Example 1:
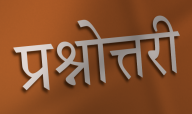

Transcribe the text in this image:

प्रश्नोत्तरी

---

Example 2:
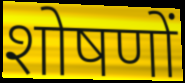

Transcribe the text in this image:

शोषणों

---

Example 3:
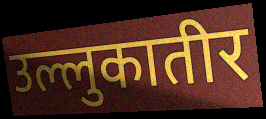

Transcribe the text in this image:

उल्लुकातीर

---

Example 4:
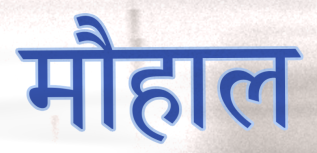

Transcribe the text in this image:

मौहाल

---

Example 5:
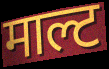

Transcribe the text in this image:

माल्ट